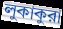
লুকাকুরা